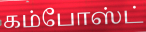
கம்போஸ்ட்